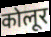
कोलूर